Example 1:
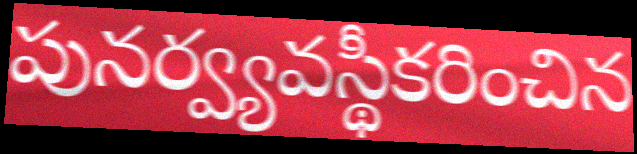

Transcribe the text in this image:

పునర్వ్యవస్థీకరించిన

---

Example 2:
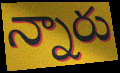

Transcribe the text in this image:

న్నారు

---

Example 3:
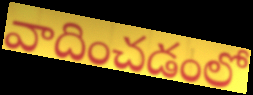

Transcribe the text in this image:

వాదించడంలో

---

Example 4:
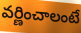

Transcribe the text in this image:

వర్ణించాలంటే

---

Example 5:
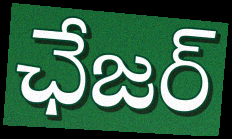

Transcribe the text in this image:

ఛేజర్